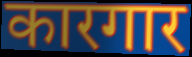
कारगार